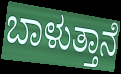
ಬಾಳುತ್ತಾನೆ